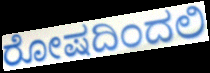
ರೋಷದಿಂದಲಿ